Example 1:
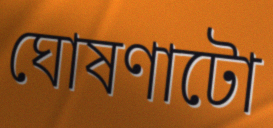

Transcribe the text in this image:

ঘোষণাটো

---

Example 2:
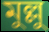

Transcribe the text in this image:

মুল্লু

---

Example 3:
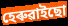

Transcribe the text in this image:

হেৰুৱাইছো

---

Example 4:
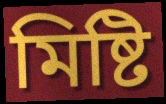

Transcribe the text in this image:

মিষ্টি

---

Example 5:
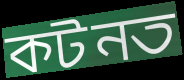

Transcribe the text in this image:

কটনত